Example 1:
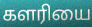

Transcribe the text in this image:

களரியை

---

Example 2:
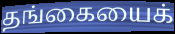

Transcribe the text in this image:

தங்கையைக்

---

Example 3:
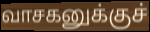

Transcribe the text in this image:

வாசகனுக்குச்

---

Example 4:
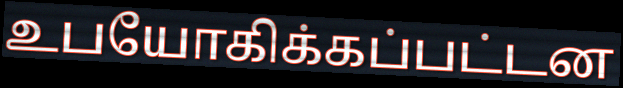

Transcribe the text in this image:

உபயோகிக்கப்பட்டன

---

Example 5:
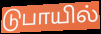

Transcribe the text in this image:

டுபாயில்